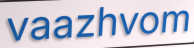
vaazhvom